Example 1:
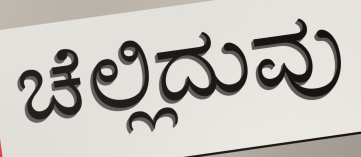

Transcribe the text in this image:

ಚೆಲ್ಲಿದುವು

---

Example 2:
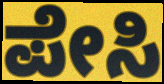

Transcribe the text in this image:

ಪೇಸಿ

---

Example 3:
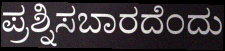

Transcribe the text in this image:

ಪ್ರಶ್ನಿಸಬಾರದೆಂದು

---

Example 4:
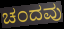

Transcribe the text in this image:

ಚಂದವು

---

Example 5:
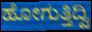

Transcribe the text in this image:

ಹೋಗುತ್ತಿದ್ವಿ